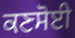
ਕਣਸੋਈ